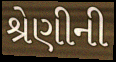
શ્રેણીની